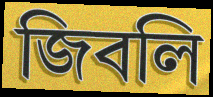
জিবলি